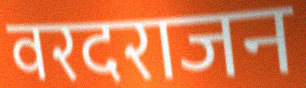
वरदराजन